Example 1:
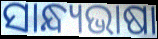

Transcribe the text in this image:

ସାନ୍ଧ୍ୟଭାଷା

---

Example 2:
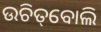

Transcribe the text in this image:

ଉଚିତ୍‌ବୋଲି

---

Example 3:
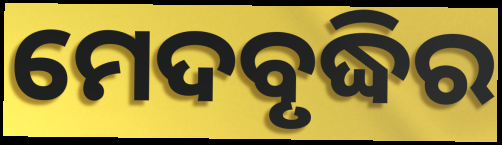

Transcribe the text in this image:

ମେଦବୃଦ୍ଧିର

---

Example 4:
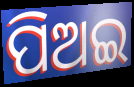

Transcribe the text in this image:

ପିଅଇ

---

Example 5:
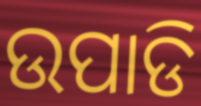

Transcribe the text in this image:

ଉପାଡି